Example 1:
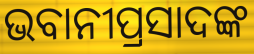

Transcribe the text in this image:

ଭବାନୀପ୍ରସାଦଙ୍କ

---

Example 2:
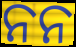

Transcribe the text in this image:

ନନ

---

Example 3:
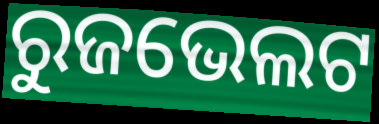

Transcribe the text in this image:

ରୁଜଭେଲଟ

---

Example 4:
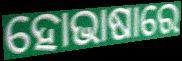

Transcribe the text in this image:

ହୋଭାଷାରେ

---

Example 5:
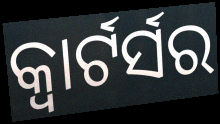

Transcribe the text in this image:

କ୍ବାର୍ଟର୍ସର